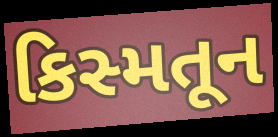
કિસ્મતૂન